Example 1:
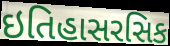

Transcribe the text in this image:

ઇતિહાસરસિક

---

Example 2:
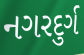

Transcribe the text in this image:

નગરદુર્ગ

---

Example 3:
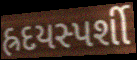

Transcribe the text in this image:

હ્રદયસ્પર્શી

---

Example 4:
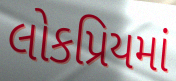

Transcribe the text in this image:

લોકપ્રિયમાં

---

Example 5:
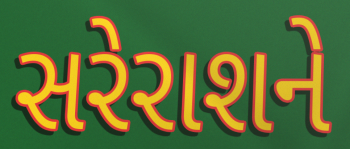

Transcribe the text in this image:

સરેરાશને